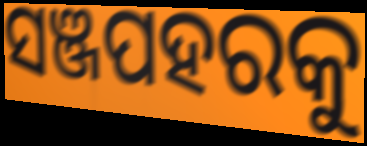
ସଞ୍ଜପହରକୁ